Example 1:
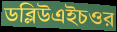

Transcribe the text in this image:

ডব্লিউএইচওর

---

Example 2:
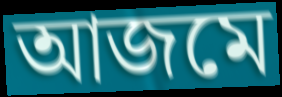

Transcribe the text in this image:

আজমে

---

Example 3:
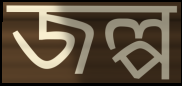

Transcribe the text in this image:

জল্প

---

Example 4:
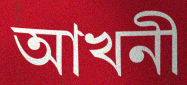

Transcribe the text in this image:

আখনী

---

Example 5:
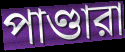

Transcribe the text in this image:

পাণ্ডারা